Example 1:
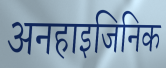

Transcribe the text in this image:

अनहाइजिनिक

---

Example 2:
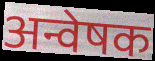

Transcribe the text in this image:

अन्वेषक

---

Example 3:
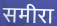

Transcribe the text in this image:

समीरा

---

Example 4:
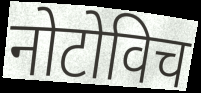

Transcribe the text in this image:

नोटोविच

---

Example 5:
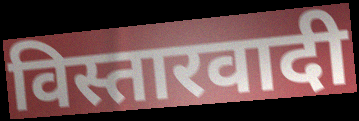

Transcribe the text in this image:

विस्तारवादी